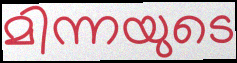
മിന്നയുടെ